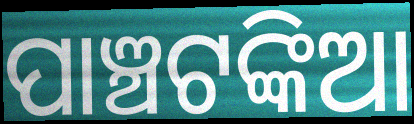
ପାଞ୍ଚଟଙ୍କିଆ